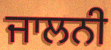
ਜਾਲਨੀ